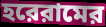
হরেরামের